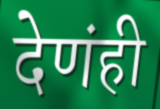
देणंही